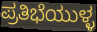
ಪ್ರತಿಭೆಯುಳ್ಳ